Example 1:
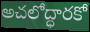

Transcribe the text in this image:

అచలోద్ధారకో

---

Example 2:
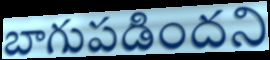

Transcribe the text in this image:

బాగుపడిందని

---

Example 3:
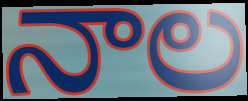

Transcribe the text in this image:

నాల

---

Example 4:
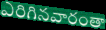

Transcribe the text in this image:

ఎరిగినవారంతా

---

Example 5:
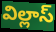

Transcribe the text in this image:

విల్లాస్